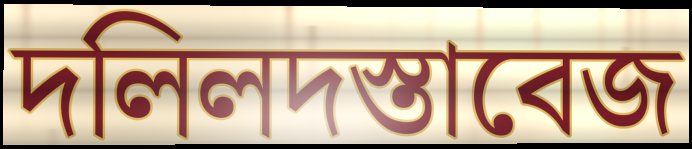
দলিলদস্তাবেজ